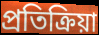
প্রতিক্রিয়া